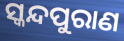
ସ୍କନ୍ଦପୁରାଣ